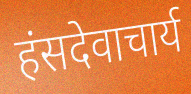
हंसदेवाचार्य